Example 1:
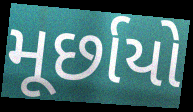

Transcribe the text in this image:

મૂર્છાયો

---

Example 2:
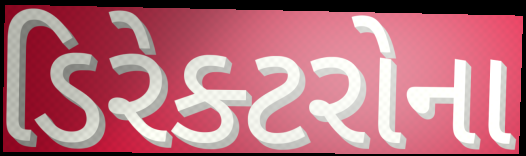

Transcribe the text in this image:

ડિરેક્ટરોના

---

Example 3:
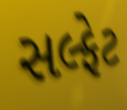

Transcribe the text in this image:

સલ્ફેટ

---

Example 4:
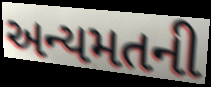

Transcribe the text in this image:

અન્યમતની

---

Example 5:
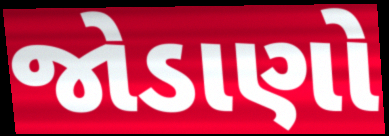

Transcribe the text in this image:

જોડાણો